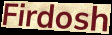
Firdosh